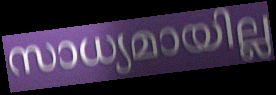
സാധ്യമായില്ല